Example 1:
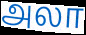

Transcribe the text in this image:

அலா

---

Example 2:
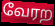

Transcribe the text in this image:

வேரற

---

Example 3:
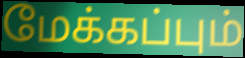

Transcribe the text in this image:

மேக்கப்பும்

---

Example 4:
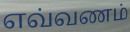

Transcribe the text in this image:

எவ்வணம்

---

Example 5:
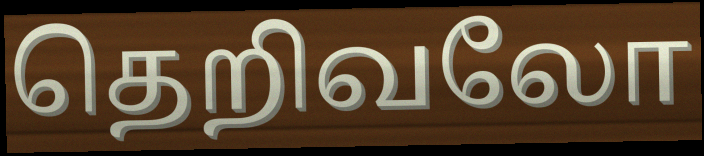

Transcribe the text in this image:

தெறிவலோ